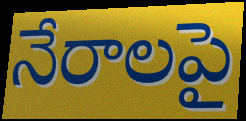
నేరాలపై